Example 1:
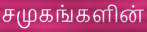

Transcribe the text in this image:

சமுகங்களின்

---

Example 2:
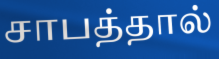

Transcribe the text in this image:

சாபத்தால்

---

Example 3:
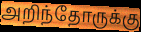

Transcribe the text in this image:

அறிந்தோருக்கு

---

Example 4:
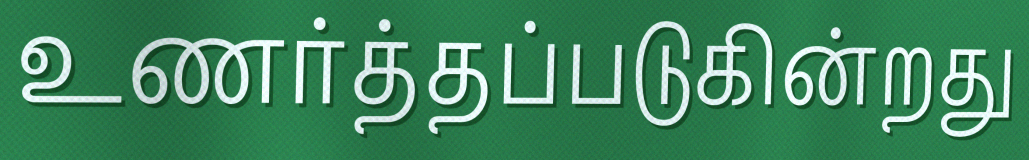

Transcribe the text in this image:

உணர்த்தப்படுகின்றது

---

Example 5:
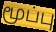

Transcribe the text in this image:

மூப்பு